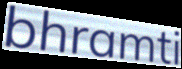
bhramti